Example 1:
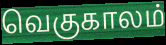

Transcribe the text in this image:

வெகுகாலம்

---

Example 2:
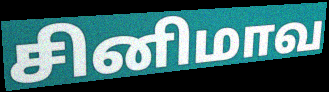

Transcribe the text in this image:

சினிமாவ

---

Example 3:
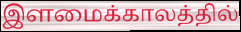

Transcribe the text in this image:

இளமைக்காலத்தில்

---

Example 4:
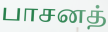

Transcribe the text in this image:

பாசனத்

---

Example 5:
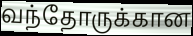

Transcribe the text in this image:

வந்தோருக்கான